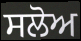
ਸਲੋਅ